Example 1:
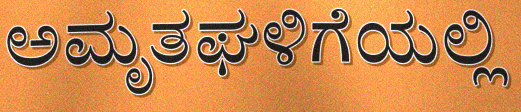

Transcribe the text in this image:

ಅಮೃತಘಳಿಗೆಯಲ್ಲಿ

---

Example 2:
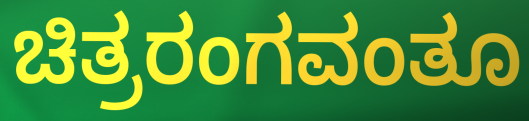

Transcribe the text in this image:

ಚಿತ್ರರಂಗವಂತೂ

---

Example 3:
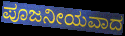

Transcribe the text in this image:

ಪೂಜನೀಯವಾದ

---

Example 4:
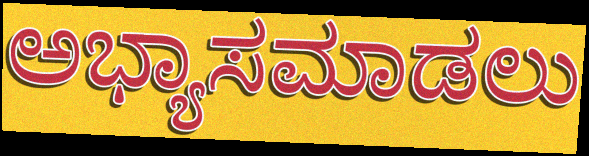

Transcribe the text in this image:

ಅಭ್ಯಾಸಮಾಡಲು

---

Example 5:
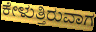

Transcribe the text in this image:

ಕೇಳುತ್ತಿರುವಾಗ